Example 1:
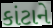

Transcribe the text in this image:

કાંટાને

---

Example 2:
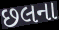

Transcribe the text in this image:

છલના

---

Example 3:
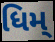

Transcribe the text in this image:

ધિમ્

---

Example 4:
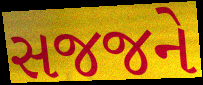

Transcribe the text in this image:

સજજને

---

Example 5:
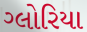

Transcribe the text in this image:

ગ્લોરિયા